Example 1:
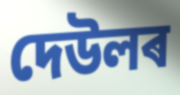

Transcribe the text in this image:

দেউলৰ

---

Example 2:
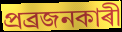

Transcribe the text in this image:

প্ৰব্ৰজনকাৰী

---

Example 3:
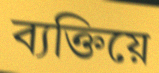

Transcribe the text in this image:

ব্যক্তিয়ে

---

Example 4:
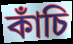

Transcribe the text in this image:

কাঁচি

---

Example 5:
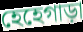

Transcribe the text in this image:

হেহেগাড়া